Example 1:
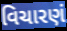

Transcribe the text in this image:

વિચારણં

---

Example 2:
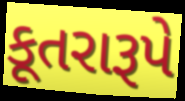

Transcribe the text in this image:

કૂતરારૂપે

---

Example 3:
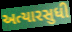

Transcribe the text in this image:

અત્યારસુધી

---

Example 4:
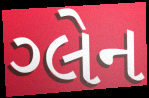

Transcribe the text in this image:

ગ્લેન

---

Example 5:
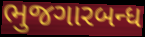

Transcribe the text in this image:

ભુજગારબન્ધ